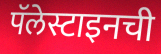
पॅलेस्टाइनची